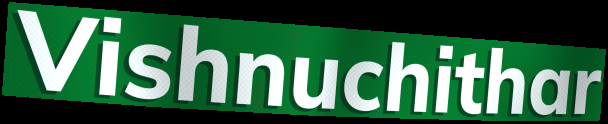
Vishnuchithar